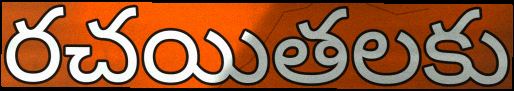
రచయితలకు